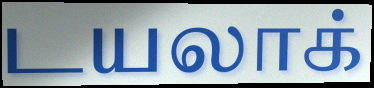
டயலாக்